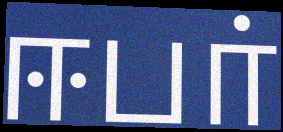
ஈபர்